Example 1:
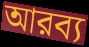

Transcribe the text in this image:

আরব্য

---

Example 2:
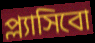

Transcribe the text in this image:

প্ল্যাসিবো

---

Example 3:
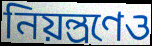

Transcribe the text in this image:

নিয়ন্ত্রণেও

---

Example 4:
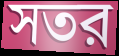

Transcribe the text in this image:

সতর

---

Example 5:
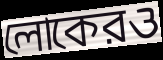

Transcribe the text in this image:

লোকেরও